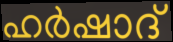
ഹർഷാദ്